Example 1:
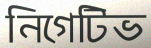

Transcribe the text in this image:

নিগেটিভ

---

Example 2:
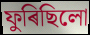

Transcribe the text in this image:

ফুৰিছিলো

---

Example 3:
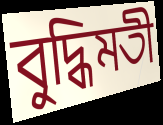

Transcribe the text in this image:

বুদ্ধিমতী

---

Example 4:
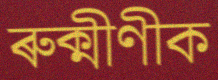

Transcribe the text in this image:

ৰুক্মীণীক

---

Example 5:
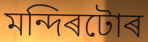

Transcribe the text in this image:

মন্দিৰটোৰ